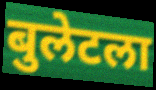
बुलेटला